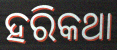
ହରିକଥା